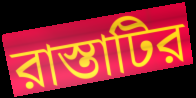
রাস্তাটির